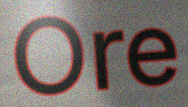
Ore